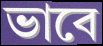
ভাবে